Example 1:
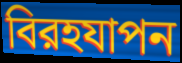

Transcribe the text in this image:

বিরহযাপন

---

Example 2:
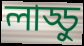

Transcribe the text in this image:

লাড্ডু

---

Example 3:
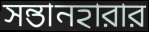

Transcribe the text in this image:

সন্তানহারার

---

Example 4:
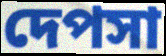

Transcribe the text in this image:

দেপসা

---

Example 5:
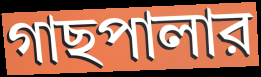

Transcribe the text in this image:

গাছপালার